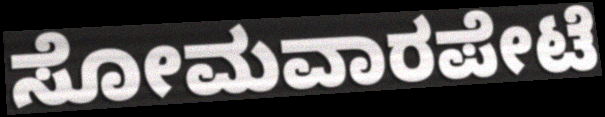
ಸೋಮವಾರಪೇಟೆ